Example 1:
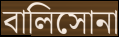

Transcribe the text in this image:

বালিসোনা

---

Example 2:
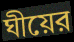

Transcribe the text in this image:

ঘীয়ের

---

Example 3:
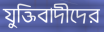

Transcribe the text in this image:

যুক্তিবাদীদের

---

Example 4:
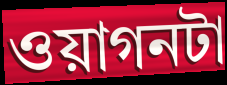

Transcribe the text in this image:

ওয়াগনটা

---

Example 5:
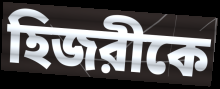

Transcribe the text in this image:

হিজরীকে